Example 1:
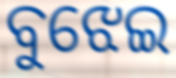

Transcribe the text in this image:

ବୁଝେଇ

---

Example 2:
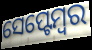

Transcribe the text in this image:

ସେପ୍ଟେମ୍ୱର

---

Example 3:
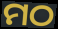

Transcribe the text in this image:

ମଠ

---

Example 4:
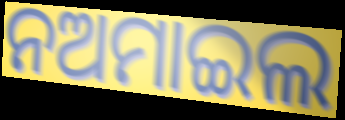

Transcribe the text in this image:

ନଅମାଇଲ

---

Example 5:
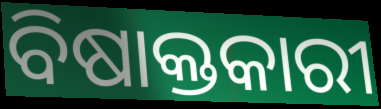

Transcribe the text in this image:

ବିଷାକ୍ତକାରୀ